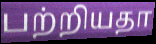
பற்றியதா